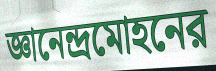
জ্ঞানেন্দ্রমোহনের